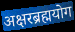
अक्षरब्रह्मयोग